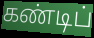
கண்டிப்